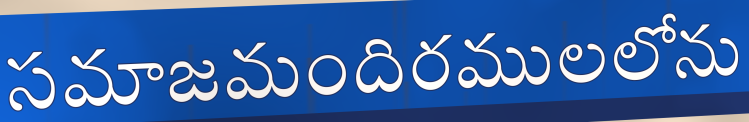
సమాజమందిరములలోను